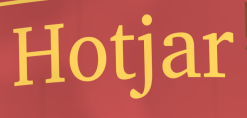
Hotjar